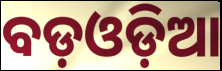
ବଡ଼ଓଡ଼ିଆ